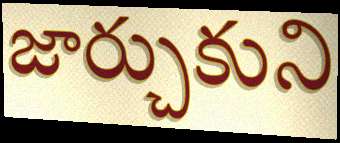
జార్చుకుని